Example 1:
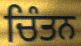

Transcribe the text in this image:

ਚਿੰਤਨ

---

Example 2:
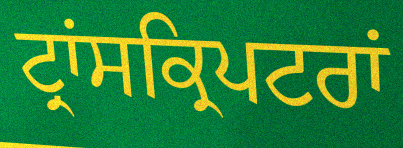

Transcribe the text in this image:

ਟ੍ਰਾਂਸਕ੍ਰਿਪਟਰਾਂ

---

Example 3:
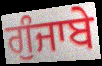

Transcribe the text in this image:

ਗੁੰਜਾਬੇ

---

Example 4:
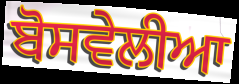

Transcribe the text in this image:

ਬੋਸਵੇਲੀਆ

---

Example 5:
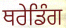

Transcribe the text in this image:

ਥਰੇਡਿੰਗ